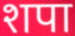
शपा